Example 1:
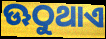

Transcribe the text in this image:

ଊଠୁଥାଏ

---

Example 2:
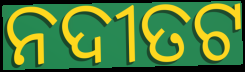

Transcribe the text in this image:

ନଦୀତଟ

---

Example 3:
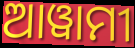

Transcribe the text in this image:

ଆୱାମୀ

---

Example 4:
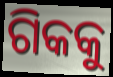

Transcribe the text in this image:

ଗିକକୁ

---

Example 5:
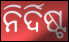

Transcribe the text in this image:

ନିର୍ଦିଷ୍ଟ